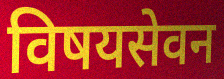
विषयसेवन